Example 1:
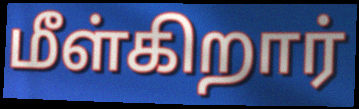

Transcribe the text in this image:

மீள்கிறார்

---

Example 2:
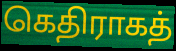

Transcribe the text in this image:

கெதிராகத்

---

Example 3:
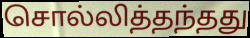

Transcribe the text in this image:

சொல்லித்தந்தது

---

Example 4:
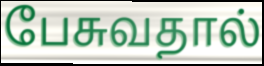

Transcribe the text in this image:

பேசுவதால்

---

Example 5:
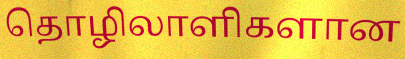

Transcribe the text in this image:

தொழிலாளிகளான